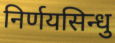
निर्णयसिन्धु